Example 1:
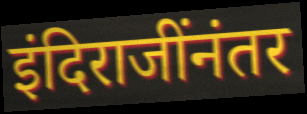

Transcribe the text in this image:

इंदिराजींनंतर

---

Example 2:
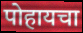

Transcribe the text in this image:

पोहायचा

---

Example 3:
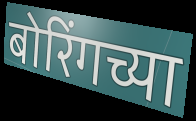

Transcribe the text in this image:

बोरिंगच्या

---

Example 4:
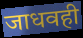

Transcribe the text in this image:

जाधवही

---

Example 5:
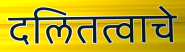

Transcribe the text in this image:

दलितत्वाचे